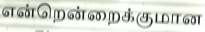
என்றென்றைக்குமான